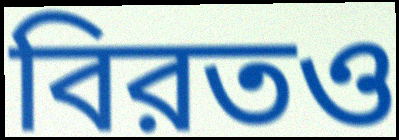
বিরতও